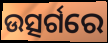
ଉତ୍ସର୍ଗରେ